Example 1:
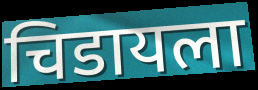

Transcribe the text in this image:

चिडायला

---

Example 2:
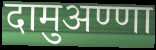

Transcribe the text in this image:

दामुअण्णा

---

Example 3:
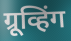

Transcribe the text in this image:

ग्रूव्हिंग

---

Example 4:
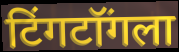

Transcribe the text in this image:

टिंगटॉंगला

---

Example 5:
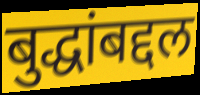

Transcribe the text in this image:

बुद्धांबद्दल